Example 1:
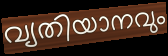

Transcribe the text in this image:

വ്യതിയാനവും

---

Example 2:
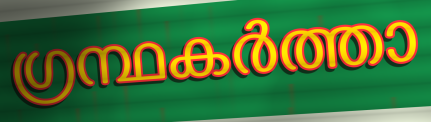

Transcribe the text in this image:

ഗ്രന്ഥകർത്താ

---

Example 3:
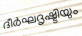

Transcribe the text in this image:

ദീർഘദൃഷ്ടിയും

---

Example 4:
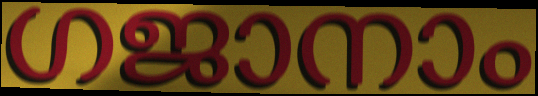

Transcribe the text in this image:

ഗജാനാം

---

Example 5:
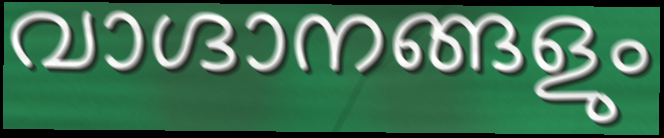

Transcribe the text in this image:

വാഗ്ദാനങ്ങളും